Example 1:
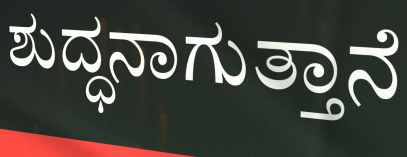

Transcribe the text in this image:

ಶುದ್ಧನಾಗುತ್ತಾನೆ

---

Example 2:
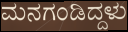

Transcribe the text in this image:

ಮನಗಂಡಿದ್ದಳು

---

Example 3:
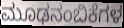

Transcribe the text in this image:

ಮೂಢನಂಬಿಕೆಗಳ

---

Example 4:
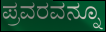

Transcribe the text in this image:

ಪ್ರವರವನ್ನೂ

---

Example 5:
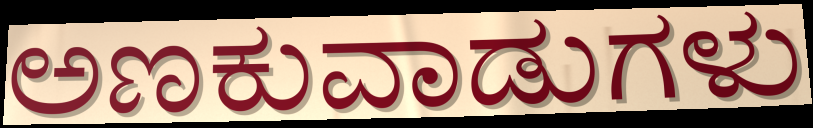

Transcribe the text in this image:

ಅಣಕುವಾಡುಗಳು